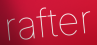
rafter